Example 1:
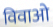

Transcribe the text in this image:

विवाओ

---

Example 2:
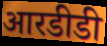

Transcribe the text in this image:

आरडीडी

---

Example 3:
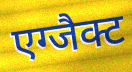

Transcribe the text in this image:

एग्जैक्ट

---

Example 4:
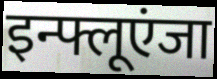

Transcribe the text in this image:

इन्फ्लूएंजा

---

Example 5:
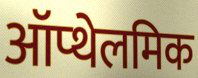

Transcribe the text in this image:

ऑप्थेलमिक